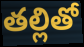
తల్లితో